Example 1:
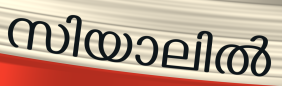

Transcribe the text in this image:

സിയാലിൽ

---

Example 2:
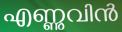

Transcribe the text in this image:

എണ്ണുവിൻ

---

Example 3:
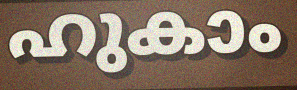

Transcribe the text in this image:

ഹുകാം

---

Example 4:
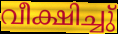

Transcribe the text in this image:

വീക്ഷിച്ചു്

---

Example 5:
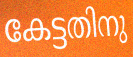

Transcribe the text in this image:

കേട്ടതിനു